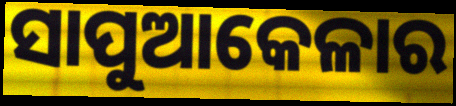
ସାପୁଆକେଳାର